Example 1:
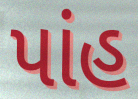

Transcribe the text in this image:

પાંહ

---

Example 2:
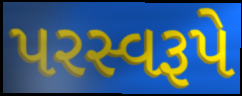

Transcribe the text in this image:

પરસ્વરૂપે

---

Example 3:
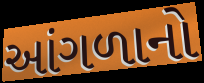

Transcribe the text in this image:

આંગળાનો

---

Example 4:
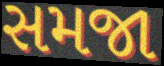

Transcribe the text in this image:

સમજા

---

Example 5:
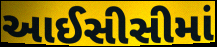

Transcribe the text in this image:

આઈસીસીમાં